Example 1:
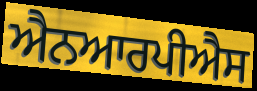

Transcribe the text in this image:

ਐਨਆਰਪੀਐਸ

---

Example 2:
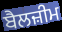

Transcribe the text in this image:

ਬੈਲਜ਼ੀਮ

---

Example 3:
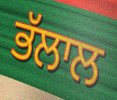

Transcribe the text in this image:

ਭੱਲਾਲ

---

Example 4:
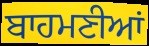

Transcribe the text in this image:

ਬਾਹਮਣੀਆਂ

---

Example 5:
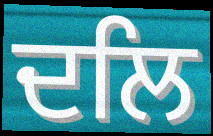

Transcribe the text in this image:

ਦਲਿ